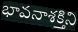
భావనాశక్తిని